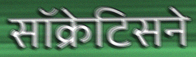
सॉक्रेटिसने